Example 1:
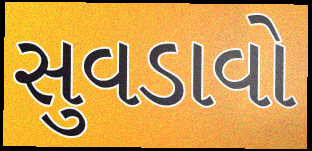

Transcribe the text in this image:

સુવડાવો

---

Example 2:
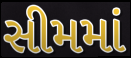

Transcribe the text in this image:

સીમમાં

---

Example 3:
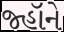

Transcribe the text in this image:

જ્હૉને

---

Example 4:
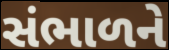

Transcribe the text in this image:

સંભાળને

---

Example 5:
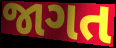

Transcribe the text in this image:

જાગત